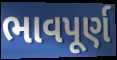
ભાવપૂર્ણ